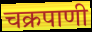
चक्रपाणी